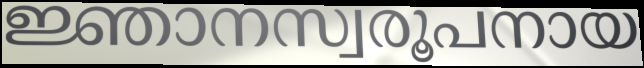
ജ്ഞാനസ്വരൂപനായ